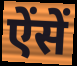
ऐंसें